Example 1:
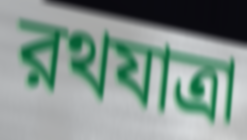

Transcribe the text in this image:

রথযাত্রা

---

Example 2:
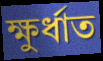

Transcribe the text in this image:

ক্ষুর্ধাত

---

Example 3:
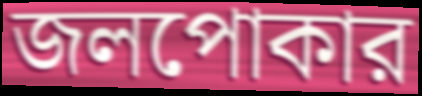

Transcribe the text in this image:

জলপোকার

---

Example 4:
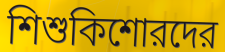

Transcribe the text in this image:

শিশুকিশোরদের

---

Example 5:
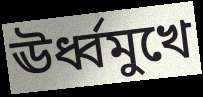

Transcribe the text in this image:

ঊর্ধ্বমুখে